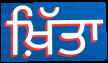
ਖ਼ਿੱਤਾ